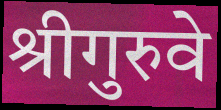
श्रीगुरुवे